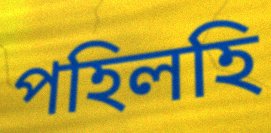
পহিলহি